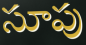
సూపు